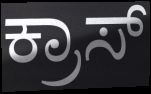
ಕ್ರಾಸ್